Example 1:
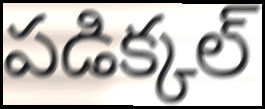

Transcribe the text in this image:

పడిక్కల్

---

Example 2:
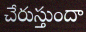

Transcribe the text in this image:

చేరుస్తుందా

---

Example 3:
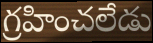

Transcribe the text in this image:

గ్రహించలేడు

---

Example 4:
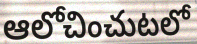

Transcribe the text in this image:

ఆలోచించుటలో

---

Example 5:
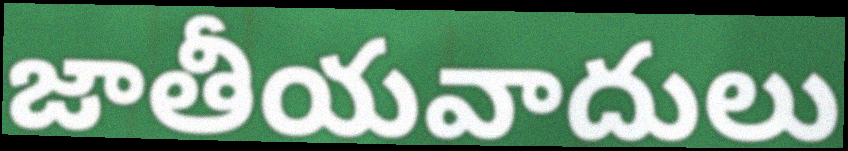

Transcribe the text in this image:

జాతీయవాదులు